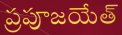
ప్రపూజయేత్